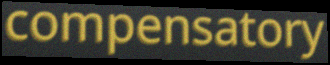
compensatory